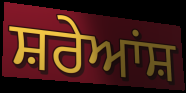
ਸ਼ਰੇਆਂਸ਼